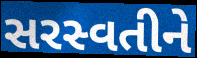
સરસ્વતીને